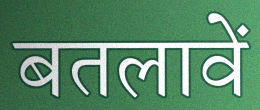
बतलावें